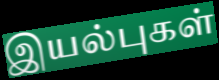
இயல்புகள்